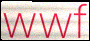
wwf